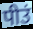
पीउं